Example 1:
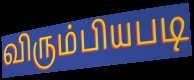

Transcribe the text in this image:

விரும்பியபடி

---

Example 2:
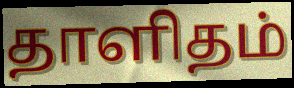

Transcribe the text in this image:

தாளிதம்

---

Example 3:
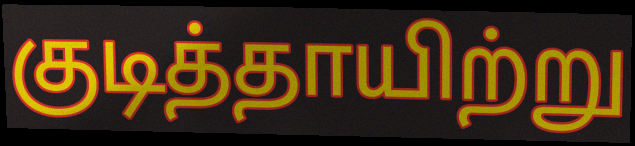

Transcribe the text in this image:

குடித்தாயிற்று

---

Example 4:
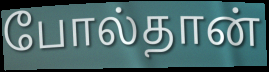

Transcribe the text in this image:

போல்தான்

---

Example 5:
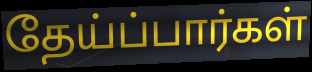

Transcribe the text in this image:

தேய்ப்பார்கள்